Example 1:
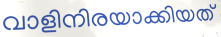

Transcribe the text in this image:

വാളിനിരയാക്കിയത്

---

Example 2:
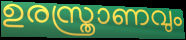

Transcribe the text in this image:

ഉരസ്ത്രാണവും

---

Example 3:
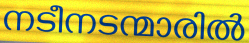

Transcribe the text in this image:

നടീനടന്മാരിൽ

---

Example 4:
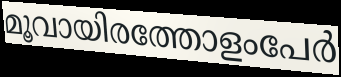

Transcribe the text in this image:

മൂവായിരത്തോളംപേർ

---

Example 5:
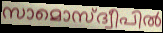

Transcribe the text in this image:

സാമൊസ്ദ്വീപിൽ